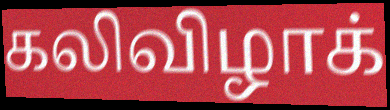
கலிவிழாக்